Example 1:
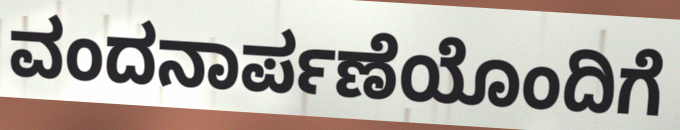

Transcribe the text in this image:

ವಂದನಾರ್ಪಣೆಯೊಂದಿಗೆ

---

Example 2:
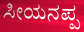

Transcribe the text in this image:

ಸೀಯನಪ್ಪ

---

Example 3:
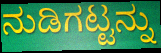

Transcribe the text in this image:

ನುಡಿಗಟ್ಟನ್ನು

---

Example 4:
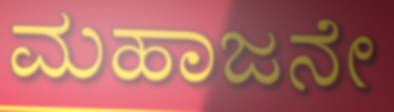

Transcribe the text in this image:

ಮಹಾಜನೇ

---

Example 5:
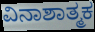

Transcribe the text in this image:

ವಿನಾಶಾತ್ಮಕ